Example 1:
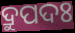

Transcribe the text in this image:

ଦ୍ରୁପଦଃ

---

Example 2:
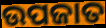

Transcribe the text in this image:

ଉପଜାତ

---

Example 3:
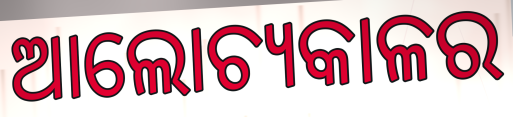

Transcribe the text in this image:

ଆଲୋଚ୍ୟକାଳର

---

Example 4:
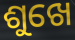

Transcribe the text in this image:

ଶୁଖେ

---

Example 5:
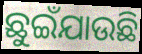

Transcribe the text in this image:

ଛୁଇଁଯାଉଛି